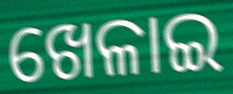
ଖେଳାଇ